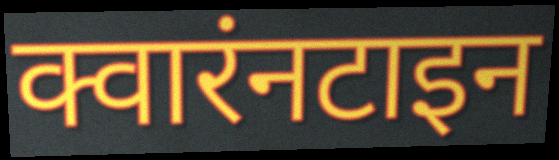
क्वारंनटाइन